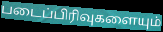
படைப்பிரிவுகளையும்